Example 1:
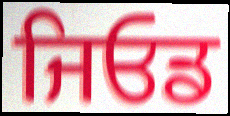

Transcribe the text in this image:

ਜਿਓਡ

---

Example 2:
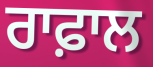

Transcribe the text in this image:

ਰਾਫ਼ਾਲ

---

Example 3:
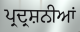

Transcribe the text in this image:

ਪ੍ਰਦ੍ਰਸ਼ਨੀਆਂ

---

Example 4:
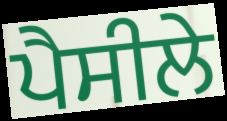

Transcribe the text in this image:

ਪੈਸੀਲੇ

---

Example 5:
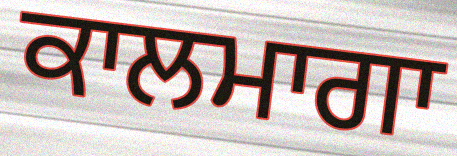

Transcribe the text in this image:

ਕਾਲਮਾਗਾ